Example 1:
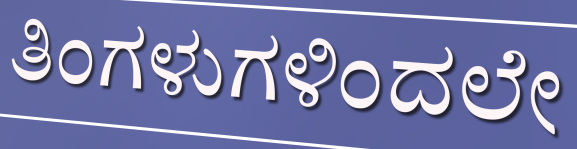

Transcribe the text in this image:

ತಿಂಗಳುಗಳಿಂದಲೇ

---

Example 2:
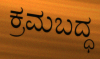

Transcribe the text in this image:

ಕ್ರಮಬದ್ಧ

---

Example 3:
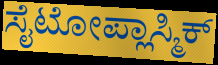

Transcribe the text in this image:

ಸೈಟೋಪ್ಲಾಸ್ಮಿಕ್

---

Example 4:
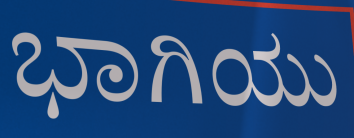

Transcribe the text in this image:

ಭಾಗಿಯು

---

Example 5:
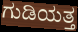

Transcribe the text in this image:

ಗುಡಿಯತ್ತ